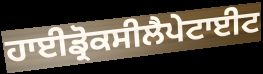
ਹਾਈਡ੍ਰੋਕਸੀਲੈਪੇਟਾਈਟ